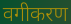
वगीकरण